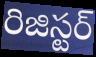
రిజిస్టర్